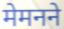
मेमनने